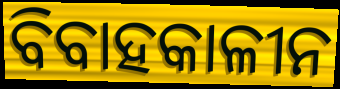
ବିବାହକାଳୀନ